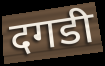
दगडी